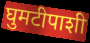
घुमटीपाशी